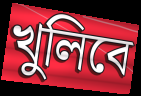
খুলিবে